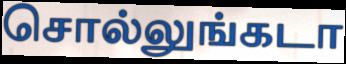
சொல்லுங்கடா